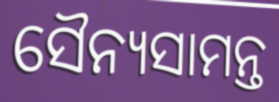
ସୈନ୍ୟସାମନ୍ତ